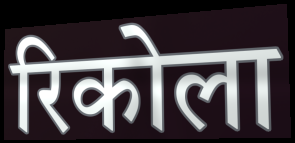
रिकोला